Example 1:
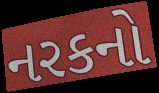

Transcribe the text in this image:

નરકનો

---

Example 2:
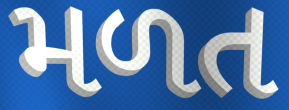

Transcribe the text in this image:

મળત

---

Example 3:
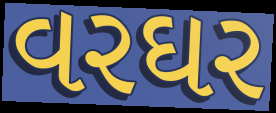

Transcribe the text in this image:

વરઘર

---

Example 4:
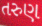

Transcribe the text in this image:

તરુણ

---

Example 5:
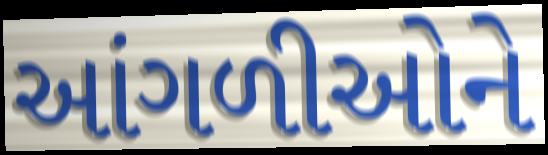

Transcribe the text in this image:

આંગળીઓને